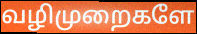
வழிமுறைகளே